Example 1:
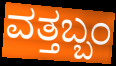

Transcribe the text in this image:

ವತ್ತಬ್ಬಂ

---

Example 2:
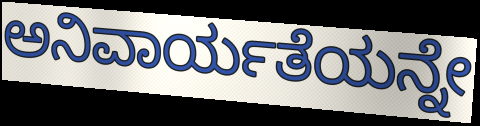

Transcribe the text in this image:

ಅನಿವಾರ್ಯತೆಯನ್ನೇ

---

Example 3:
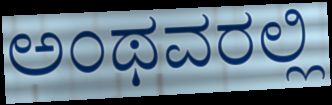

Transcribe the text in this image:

ಅಂಥವರಲ್ಲಿ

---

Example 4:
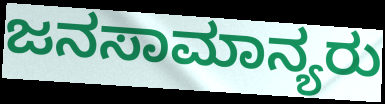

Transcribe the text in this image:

ಜನಸಾಮಾನ್ಯರು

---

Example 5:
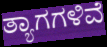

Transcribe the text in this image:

ತ್ಯಾಗಗಳಿವೆ